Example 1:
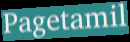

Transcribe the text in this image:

Pagetamil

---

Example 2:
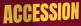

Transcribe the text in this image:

ACCESSION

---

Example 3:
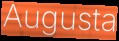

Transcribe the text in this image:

Augusta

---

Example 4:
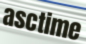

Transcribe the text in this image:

asctime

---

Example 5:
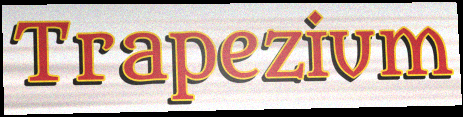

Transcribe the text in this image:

Trapezium